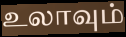
உலாவும்